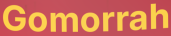
Gomorrah